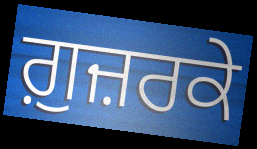
ਗ਼ੁਜ਼ਰਕੇ